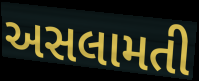
અસલામતી